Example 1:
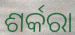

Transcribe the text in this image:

ଶର୍କରା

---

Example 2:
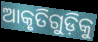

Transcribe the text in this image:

ଆକୃତିଗୁଡ଼ିକୁ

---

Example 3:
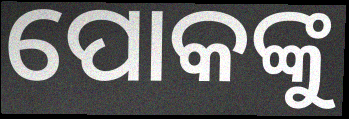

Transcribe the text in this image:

ପୋକଙ୍କୁ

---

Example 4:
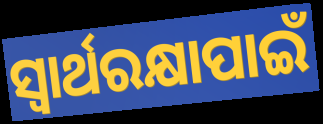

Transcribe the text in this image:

ସ୍ୱାର୍ଥରକ୍ଷାପାଇଁ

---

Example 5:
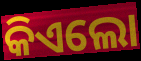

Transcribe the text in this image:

କିଏଲୋ